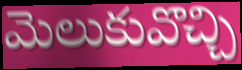
మెలుకువొచ్చి